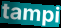
tampi